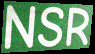
NSR